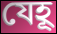
যেহূ